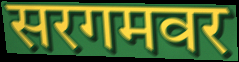
सरगमवर